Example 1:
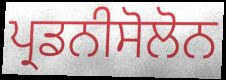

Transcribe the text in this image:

ਪ੍ਰਡਨੀਸੋਲੋਨ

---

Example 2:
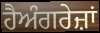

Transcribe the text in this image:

ਹੈਅੰਗਰੇਜ਼ਾਂ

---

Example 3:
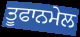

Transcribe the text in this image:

ਤੂਫਾਨਮੇਲ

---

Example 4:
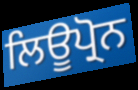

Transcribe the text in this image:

ਲਿਊਪ੍ਰੋਨ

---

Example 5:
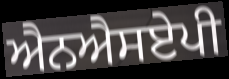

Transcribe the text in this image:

ਐਨਐਸਏਪੀ